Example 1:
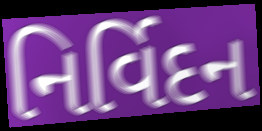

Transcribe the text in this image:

નિર્વિદન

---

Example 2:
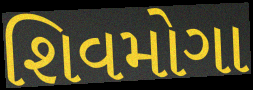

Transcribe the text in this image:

શિવમોગા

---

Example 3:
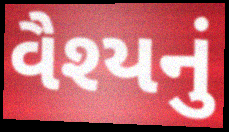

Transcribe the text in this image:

વૈશ્યનું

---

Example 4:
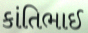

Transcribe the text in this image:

કાંતિભાઈ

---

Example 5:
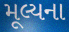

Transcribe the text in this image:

મૂલ્યના